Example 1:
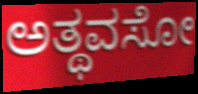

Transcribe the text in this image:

ಅತ್ಥವಸೋ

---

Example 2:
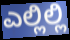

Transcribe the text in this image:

ಎಲ್ಲಿಲ್ಲಿ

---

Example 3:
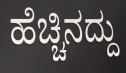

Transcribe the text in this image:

ಹೆಚ್ಚಿನದ್ದು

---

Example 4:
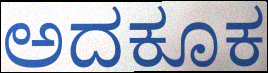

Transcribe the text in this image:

ಅದಕೂಕ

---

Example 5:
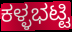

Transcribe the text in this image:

ಕಳ್ಳಭಟ್ಟಿ